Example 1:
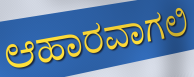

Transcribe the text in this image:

ಆಹಾರವಾಗಲಿ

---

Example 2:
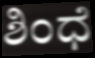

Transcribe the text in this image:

ಶಿಂಧೆ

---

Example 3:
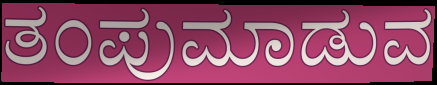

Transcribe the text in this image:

ತಂಪುಮಾಡುವ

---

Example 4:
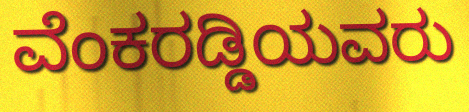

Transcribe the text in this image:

ವೆಂಕರಡ್ಡಿಯವರು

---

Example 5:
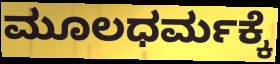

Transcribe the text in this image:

ಮೂಲಧರ್ಮಕ್ಕೆ